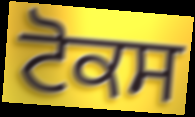
ਟੋਕਸ